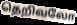
தெறிவலோ